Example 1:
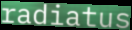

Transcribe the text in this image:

radiatus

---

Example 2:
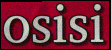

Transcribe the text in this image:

osisi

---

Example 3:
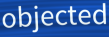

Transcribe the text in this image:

objected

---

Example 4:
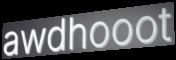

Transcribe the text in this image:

awdhooot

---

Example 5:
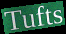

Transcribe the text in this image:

Tufts